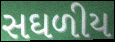
સઘળીય